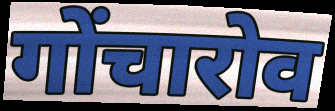
गोंचारोव